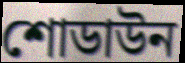
শোডাউন